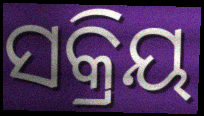
ସକ୍ରିୟ